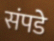
संपडे